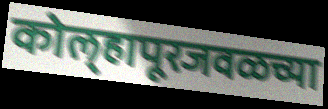
कोल्हापूरजवळच्या